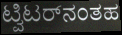
ಟ್ವಿಟರ್‌ನಂತಹ